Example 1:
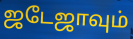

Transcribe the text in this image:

ஜடேஜாவும்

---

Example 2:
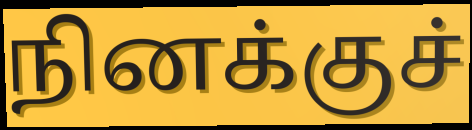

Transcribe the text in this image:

நினக்குச்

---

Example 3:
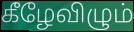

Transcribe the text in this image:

கீழேவிழும்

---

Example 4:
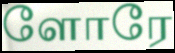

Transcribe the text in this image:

ளோரே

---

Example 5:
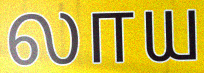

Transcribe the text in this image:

லாய